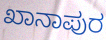
ಖಾನಾಪುರ